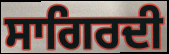
ਸਾਗਿਰਦੀ